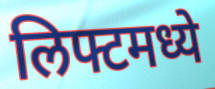
लिफ्टमध्ये